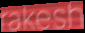
rakesh